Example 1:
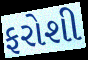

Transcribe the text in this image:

ફરોશી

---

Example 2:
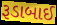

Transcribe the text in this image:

રૂડાબાઈ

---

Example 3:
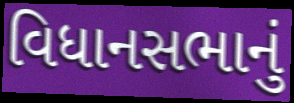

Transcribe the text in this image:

વિધાનસભાનું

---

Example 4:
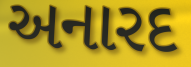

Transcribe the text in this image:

અનારદ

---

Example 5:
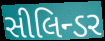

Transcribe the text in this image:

સીલિન્ડર